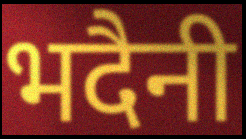
भदैनी